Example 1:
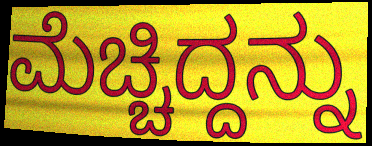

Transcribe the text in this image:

ಮೆಚ್ಚಿದ್ದನ್ನು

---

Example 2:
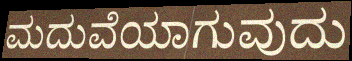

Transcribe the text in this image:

ಮದುವೆಯಾಗುವುದು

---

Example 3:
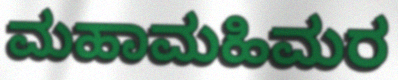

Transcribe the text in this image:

ಮಹಾಮಹಿಮರ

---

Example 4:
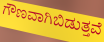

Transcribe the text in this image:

ಗೌಣವಾಗಿಬಿಡುತ್ತವೆ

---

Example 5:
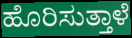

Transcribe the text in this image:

ಹೊರಿಸುತ್ತಾಳೆ